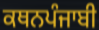
ਕਥਨਪੰਜਾਬੀ